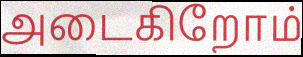
அடைகிறோம்